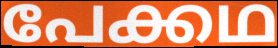
പേക്കഥ